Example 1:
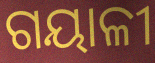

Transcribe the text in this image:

ଗୟାଳୀ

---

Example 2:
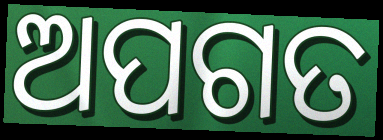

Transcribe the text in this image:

ଅପଗତ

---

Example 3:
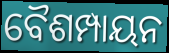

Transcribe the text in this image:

ବୈଶମ୍ପାୟନ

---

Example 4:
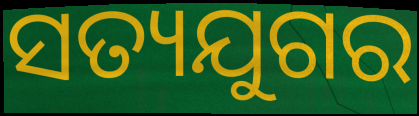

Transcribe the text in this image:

ସତ୍ୟଯୁଗର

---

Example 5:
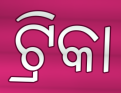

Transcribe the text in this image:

ଟ୍ରିକା